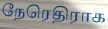
நேரெதிராக